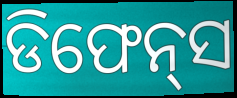
ଡିଫେନ୍‌ସ